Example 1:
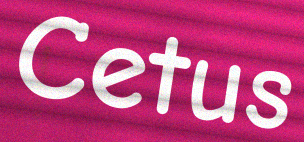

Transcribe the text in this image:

Cetus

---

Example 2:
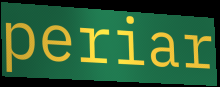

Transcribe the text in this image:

periar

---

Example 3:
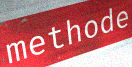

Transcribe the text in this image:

methode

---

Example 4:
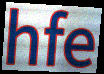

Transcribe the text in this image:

hfe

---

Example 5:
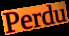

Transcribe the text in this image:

Perdu